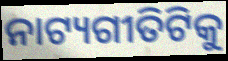
ନାଟ୍ୟଗୀତିଟିକୁ